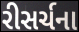
રીસર્ચના